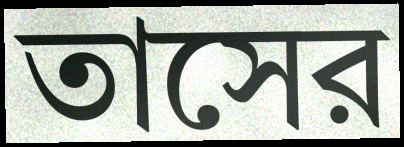
তাসের